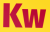
Kw